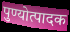
पुण्योत्पादक